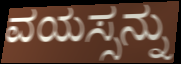
ವಯಸ್ಸನ್ನು